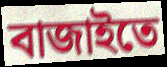
বাজাইতে